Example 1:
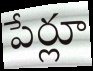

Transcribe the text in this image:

పేర్లూ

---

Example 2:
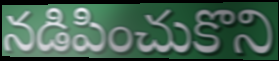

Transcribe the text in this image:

నడిపించుకొని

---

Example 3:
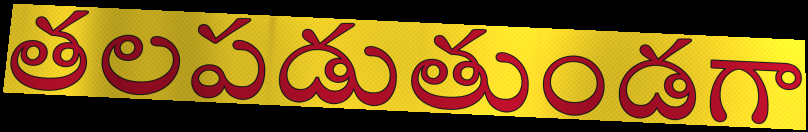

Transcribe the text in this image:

తలపడుతుండగా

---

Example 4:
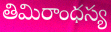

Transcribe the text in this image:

తిమిరాంధస్య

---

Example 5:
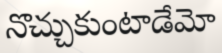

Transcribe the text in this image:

నొచ్చుకుంటాడేమో